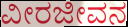
ವೀರಜೀವನ